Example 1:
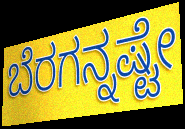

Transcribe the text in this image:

ಬೆರಗನ್ನಷ್ಟೇ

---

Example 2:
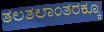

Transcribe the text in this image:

ತಲತಲಾಂತರಕ್ಕೂ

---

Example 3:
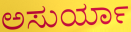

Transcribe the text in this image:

ಅಸುರ್ಯಾ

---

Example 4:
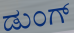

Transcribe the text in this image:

ಡುಂಗ್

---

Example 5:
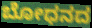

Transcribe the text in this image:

ಬೋಧನದ